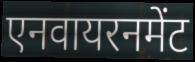
एनवायरनमेंट